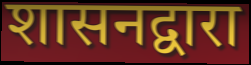
शासनद्वारा